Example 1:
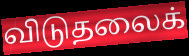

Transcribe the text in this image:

விடுதலைக்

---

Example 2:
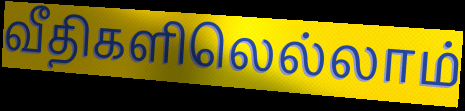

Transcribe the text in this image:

வீதிகளிலெல்லாம்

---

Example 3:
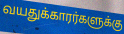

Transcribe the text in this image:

வயதுக்காரர்களுக்கு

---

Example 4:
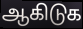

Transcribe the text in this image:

ஆகிடுக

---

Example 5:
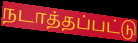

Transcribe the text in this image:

நடாத்தப்பட்டு